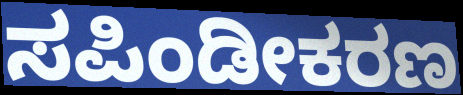
ಸಪಿಂಡೀಕರಣ